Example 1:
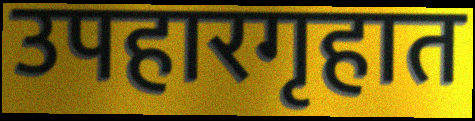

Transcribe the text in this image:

उपहारगृहात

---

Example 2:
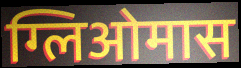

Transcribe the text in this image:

ग्लिओमास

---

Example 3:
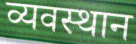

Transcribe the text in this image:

व्यवस्थान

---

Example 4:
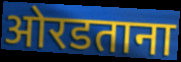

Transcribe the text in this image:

ओरडताना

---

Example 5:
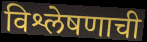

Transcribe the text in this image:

विश्लेषणाची